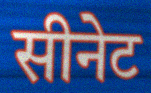
सीनेट